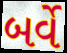
બર્વે